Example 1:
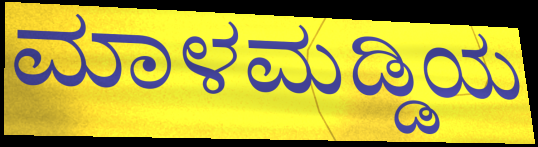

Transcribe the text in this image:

ಮಾಳಮಡ್ಡಿಯ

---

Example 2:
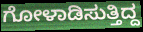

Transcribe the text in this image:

ಗೋಳಾಡಿಸುತ್ತಿದ್ದ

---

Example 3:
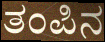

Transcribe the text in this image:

ತಂಪಿನ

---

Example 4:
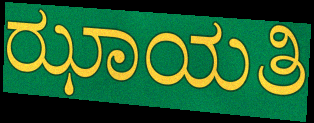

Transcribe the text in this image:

ಝಾಯತಿ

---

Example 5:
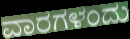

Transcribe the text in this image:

ವಾರಗಳಂದು